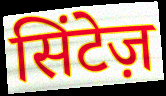
सिंटेज़